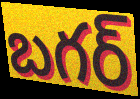
బగర్